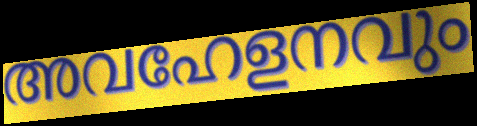
അവഹേളനവും